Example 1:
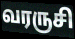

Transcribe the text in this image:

வரருசி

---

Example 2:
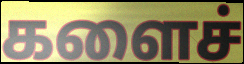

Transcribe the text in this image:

களைச்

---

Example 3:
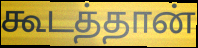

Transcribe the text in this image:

கூடத்தான்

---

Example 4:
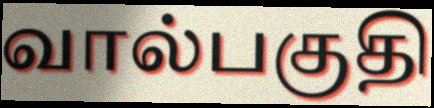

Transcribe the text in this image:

வால்பகுதி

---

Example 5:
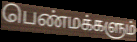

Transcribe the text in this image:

பெண்மக்களும்